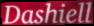
Dashiell